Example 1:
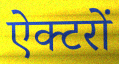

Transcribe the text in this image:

ऐक्टरों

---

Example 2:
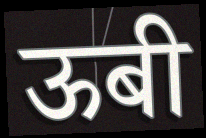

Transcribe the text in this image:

ऊबी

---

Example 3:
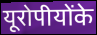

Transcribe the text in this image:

यूरोपीयोंके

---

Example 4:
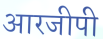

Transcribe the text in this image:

आरजीपी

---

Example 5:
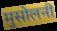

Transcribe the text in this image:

मुसोलनी